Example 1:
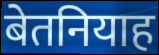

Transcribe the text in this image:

बेतनियाह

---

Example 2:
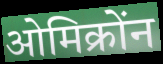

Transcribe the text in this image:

ओमिक्रोंन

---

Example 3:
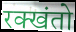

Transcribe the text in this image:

रक्खंतो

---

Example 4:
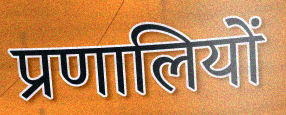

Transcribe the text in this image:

प्रणालियों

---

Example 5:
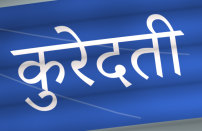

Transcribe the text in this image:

कुरेदती